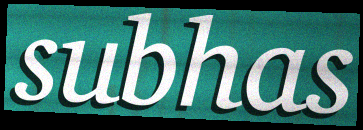
subhas